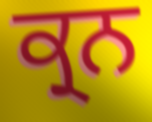
ਕ੍ਰਨ